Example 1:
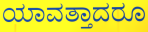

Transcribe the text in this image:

ಯಾವತ್ತಾದರೂ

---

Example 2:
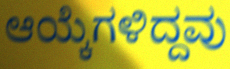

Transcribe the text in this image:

ಆಯ್ಕೆಗಳಿದ್ದವು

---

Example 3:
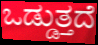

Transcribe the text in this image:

ಒಡ್ಡುತ್ತದೆ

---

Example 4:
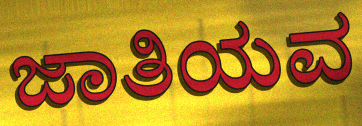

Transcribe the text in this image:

ಜಾತಿಯವ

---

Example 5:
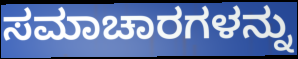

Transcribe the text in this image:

ಸಮಾಚಾರಗಳನ್ನು